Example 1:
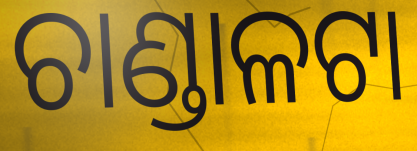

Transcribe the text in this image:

ଚାଣ୍ଡାଳଟା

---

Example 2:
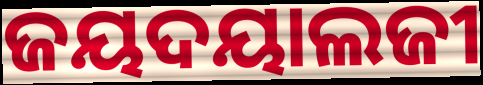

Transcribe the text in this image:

ଜୟଦୟାଲଜୀ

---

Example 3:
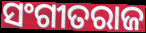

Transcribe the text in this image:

ସଂଗୀତରାଜ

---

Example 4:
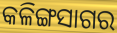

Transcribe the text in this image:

କଳିଙ୍ଗସାଗର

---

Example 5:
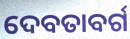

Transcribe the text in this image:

ଦେବତାବର୍ଗ